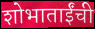
शोभाताईंची